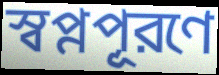
স্বপ্নপূরণে